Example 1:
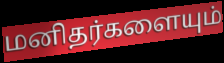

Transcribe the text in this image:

மனிதர்களையும்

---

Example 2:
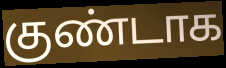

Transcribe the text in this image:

குண்டாக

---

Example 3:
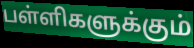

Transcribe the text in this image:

பள்ளிகளுக்கும்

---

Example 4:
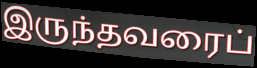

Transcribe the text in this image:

இருந்தவரைப்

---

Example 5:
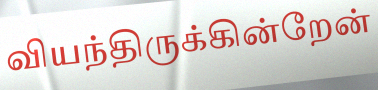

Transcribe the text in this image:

வியந்திருக்கின்றேன்